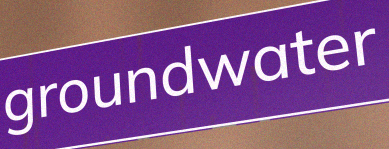
groundwater